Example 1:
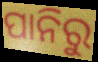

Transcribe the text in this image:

ପାନିରୁ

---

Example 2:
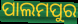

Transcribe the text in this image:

ପାଲମପୁର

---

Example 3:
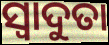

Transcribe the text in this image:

ସ୍ୱାଦୁତା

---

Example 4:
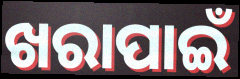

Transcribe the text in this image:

ଖରାପାଇଁ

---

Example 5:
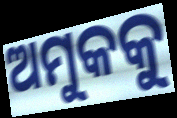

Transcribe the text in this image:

ଅମୁକକୁ